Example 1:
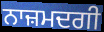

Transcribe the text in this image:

ਨਾਜ਼ਮਦਗੀ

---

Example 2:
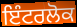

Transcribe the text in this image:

ਇੰਟਰਲੋਕ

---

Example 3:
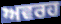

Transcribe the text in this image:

ਅਵਰਹ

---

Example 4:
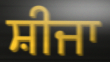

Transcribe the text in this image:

ਸ਼ੀਜਾ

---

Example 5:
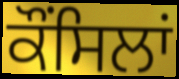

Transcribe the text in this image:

ਕੌਂਸਿਲਾਂ